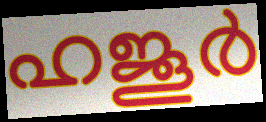
ഹജൂർ